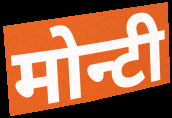
मोन्टी